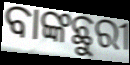
ବାଙ୍କଛୁରୀ